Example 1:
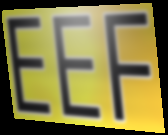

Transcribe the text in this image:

EEF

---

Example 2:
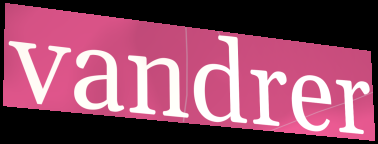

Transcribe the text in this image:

vandrer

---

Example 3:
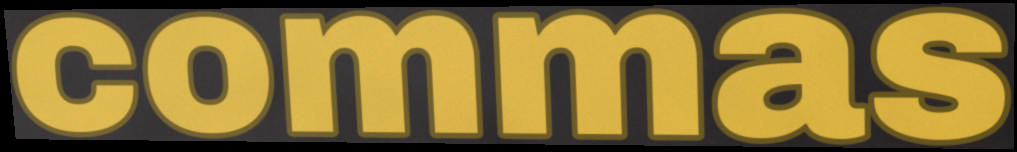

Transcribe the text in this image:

commas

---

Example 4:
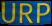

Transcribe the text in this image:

URP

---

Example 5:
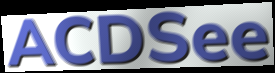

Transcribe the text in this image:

ACDSee